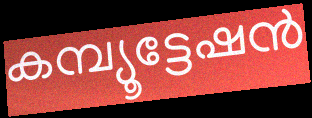
കമ്പ്യൂട്ടേഷൻ